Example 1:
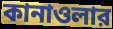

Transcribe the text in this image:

কানাওলার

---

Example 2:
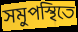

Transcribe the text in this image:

সমুপস্থিতে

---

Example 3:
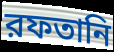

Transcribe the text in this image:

রফতানি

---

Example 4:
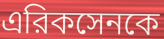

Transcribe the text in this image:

এরিকসেনকে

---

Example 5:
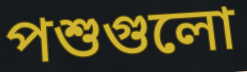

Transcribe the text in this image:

পশুগুলো